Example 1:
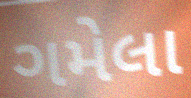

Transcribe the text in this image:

ગમેલા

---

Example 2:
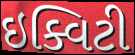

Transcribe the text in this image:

ઇક્વિટી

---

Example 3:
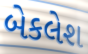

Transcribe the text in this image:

બેકલેશ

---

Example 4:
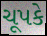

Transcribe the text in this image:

ચૂપકે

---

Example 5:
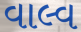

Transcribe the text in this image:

વાલ્વ